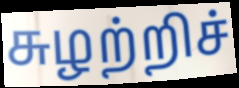
சுழற்றிச்